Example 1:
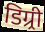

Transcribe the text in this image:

डिग्र्री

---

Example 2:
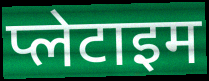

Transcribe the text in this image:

प्लेटाइम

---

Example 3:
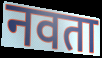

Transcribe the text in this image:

नवता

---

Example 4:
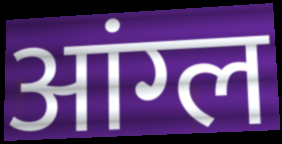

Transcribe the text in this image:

आंग्ल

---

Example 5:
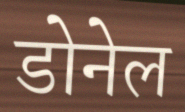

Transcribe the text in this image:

डोनेल